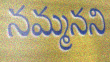
నమ్మనని